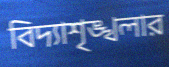
বিদ্যাশৃঙ্খলার